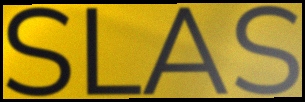
SLAS